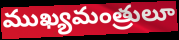
ముఖ్యమంత్రులూ